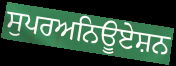
ਸੁਪਰਅਨਿਊਏਸ਼ਨ